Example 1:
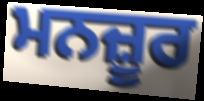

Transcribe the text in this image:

ਮਨਜ਼ੂਰ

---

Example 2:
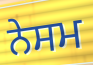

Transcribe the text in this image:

ਨੇਸਮ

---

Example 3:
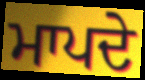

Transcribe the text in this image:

ਮਾਪਦੇ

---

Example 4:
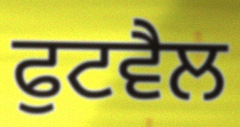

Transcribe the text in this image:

ਫੁਟਵੈਲ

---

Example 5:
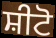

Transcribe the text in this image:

ਸ਼ੀਟੋ